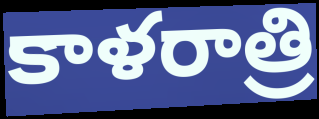
కాళరాత్రి